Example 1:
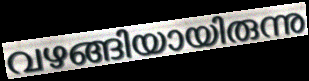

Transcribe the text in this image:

വഴങ്ങിയായിരുന്നു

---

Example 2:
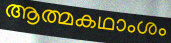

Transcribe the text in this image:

ആത്മകഥാംശം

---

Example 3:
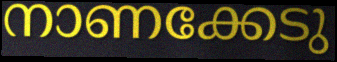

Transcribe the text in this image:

നാണക്കേടു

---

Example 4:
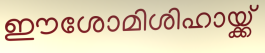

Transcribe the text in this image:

ഈശോമിശിഹായ്ക്ക്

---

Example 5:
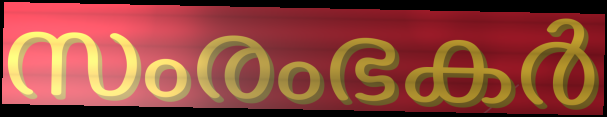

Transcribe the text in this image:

സംരംഭകർ